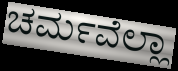
ಚರ್ಮವೆಲ್ಲಾ